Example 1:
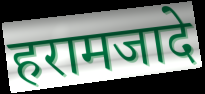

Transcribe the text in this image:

हरामजादे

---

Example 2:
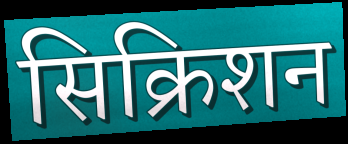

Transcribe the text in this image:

सिक्रिशन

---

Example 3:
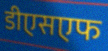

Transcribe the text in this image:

डीएसएफ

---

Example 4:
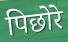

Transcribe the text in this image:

पिछोरे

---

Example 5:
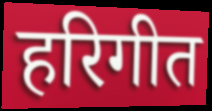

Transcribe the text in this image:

हरिगीत